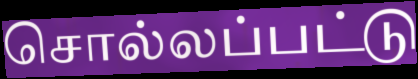
சொல்லப்பட்டு